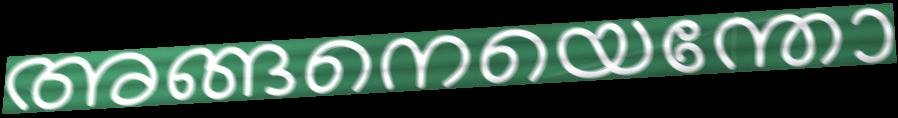
അങ്ങനെയെന്തോ